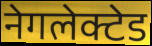
नेगलेक्टेड